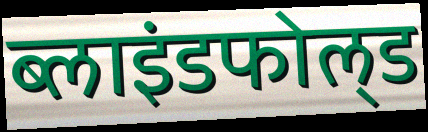
ब्लाइंडफोल्ड